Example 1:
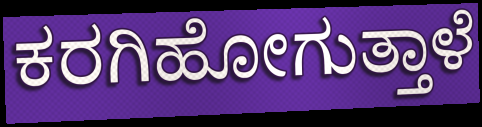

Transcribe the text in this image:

ಕರಗಿಹೋಗುತ್ತಾಳೆ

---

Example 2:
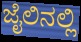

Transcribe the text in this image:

ಜೈಲಿನಲ್ಲಿ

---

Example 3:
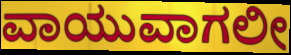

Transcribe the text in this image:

ವಾಯುವಾಗಲೀ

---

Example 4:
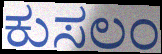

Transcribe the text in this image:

ಕುಸಲಂ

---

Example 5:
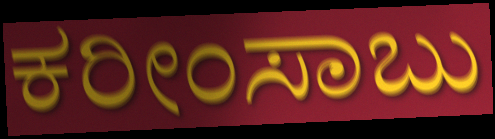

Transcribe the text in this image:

ಕರೀಂಸಾಬು